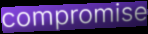
compromise